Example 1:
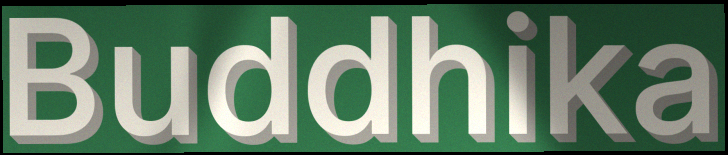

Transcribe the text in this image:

Buddhika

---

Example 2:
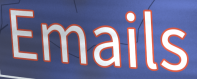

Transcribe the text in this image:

Emails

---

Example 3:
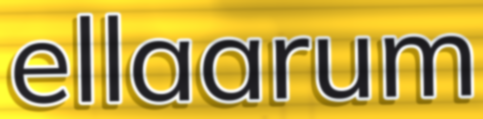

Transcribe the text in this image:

ellaarum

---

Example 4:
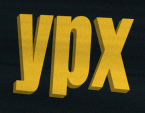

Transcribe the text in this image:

ypx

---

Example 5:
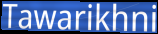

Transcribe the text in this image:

Tawarikhni